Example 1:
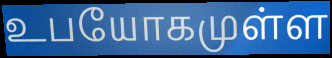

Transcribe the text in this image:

உபயோகமுள்ள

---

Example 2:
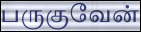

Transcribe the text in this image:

பருகுவேன்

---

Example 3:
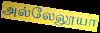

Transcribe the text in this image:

அல்லேலூயா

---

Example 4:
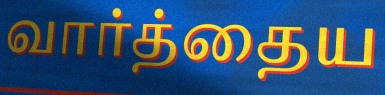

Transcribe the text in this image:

வார்த்தைய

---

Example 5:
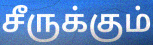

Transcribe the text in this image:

சீருக்கும்